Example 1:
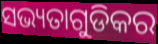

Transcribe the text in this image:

ସଭ୍ୟତାଗୁଡିକର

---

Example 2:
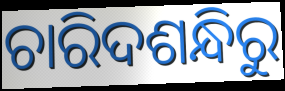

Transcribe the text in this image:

ଚାରିଦଶନ୍ଧିରୁ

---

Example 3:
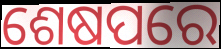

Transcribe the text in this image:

ଶେଷପରେ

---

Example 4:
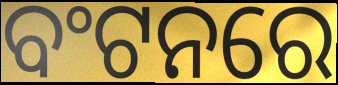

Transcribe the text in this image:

ବଂଟନରେ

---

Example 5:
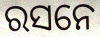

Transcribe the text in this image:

ରସନେ